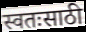
स्वतःसाठी